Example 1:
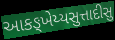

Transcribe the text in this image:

આકઙ્ખેય્યસુત્તાદીસુ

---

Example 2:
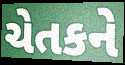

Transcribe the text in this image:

ચેતકને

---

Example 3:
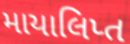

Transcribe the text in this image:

માયાલિપ્ત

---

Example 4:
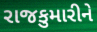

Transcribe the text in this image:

રાજકુમારીને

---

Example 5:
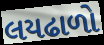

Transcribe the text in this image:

લયઢાળો